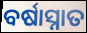
ବର୍ଷାସ୍ନାତ